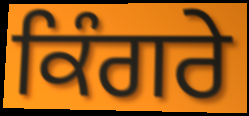
ਕਿੰਗਰੇ